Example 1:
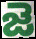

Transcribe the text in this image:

జె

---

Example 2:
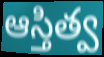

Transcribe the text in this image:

ఆస్తిత్వ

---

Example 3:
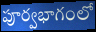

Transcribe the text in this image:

పూర్వభాగంలో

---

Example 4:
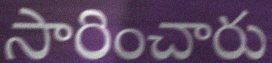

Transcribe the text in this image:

సారించారు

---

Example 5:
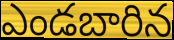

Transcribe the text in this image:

ఎండబారిన